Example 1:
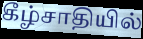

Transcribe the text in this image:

கீழ்சாதியில்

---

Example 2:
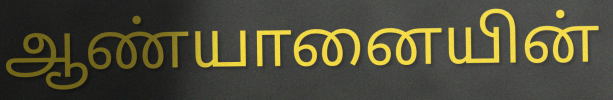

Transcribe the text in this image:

ஆண்யானையின்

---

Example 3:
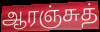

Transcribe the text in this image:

ஆரஞ்சுத்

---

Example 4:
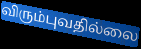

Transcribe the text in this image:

விரும்புவதில்லை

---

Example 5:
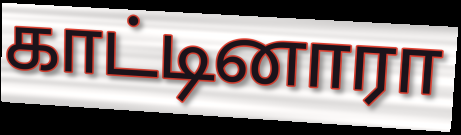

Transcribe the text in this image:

காட்டினாரா